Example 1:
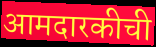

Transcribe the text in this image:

आमदारकीची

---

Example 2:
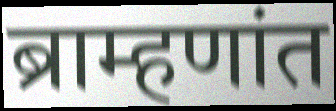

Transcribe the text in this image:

ब्राम्हणांत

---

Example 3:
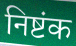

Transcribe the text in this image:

निष्टंक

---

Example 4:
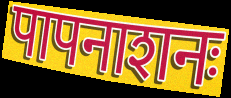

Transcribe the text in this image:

पापनाशनः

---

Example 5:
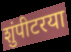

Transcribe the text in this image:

शुंपीटरया